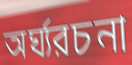
অর্ঘ্যরচনা